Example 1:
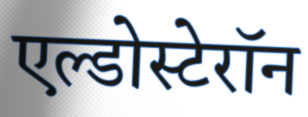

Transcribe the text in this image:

एल्डोस्टेरॉन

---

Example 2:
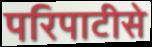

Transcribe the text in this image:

परिपाटीसे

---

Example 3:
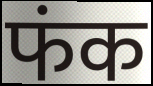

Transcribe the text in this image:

फंक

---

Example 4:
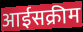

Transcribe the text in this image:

आईसक्रीम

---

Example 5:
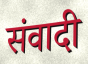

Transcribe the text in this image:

संवादी